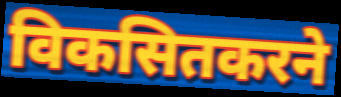
विकसितकरने